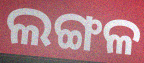
ଲଙ୍ଗଳ